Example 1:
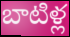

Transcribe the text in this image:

బాటిళ్ల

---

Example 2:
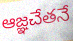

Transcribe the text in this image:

ఆజ్ఞచేతనే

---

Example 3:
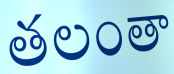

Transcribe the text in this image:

తలంతా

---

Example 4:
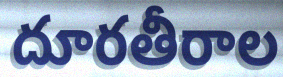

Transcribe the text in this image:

దూరతీరాల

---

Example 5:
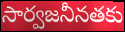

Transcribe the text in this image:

సార్వజనీనతకు